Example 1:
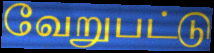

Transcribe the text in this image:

வேறுபட்டு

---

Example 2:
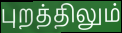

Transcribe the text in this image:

புறத்திலும்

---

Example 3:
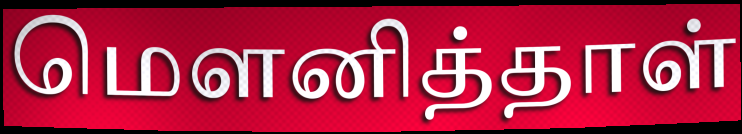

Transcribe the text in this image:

மௌனித்தாள்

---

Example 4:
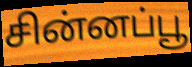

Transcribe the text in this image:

சின்னப்பூ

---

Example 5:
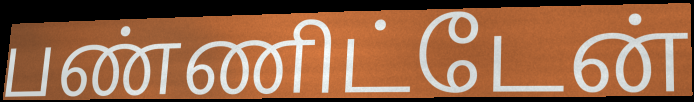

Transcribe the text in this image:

பண்ணிட்டேன்